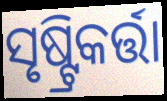
ସୃଷ୍ଟ୍ରିକର୍ତ୍ତା